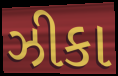
ઝીકા